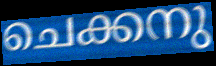
ചെക്കനു